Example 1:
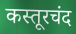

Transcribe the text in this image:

कस्तूरचंद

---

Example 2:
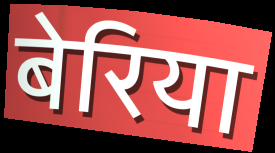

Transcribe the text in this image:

बेरिया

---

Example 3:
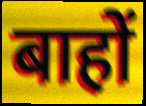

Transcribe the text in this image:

बाहों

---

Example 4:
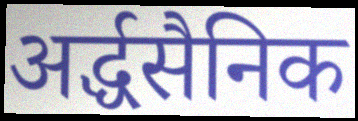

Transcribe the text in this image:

अर्द्धसैनिक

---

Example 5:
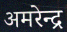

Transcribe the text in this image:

अमरेन्द्र